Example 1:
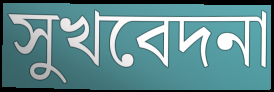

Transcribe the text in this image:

সুখবেদনা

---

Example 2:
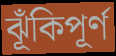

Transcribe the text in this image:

ঝূঁকিপূর্ণ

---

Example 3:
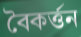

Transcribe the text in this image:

বৈকর্ত্তন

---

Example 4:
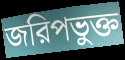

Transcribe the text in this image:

জরিপভুক্ত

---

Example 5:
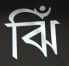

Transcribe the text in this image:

ঝিঁ